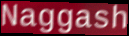
Naggash